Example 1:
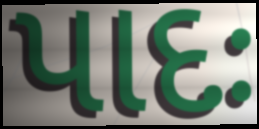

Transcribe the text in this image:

પાદઃ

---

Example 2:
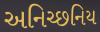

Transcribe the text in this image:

અનિચ્છનિય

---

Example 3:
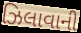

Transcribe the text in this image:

ઝિલાવાની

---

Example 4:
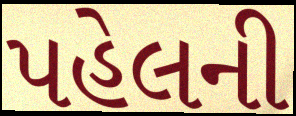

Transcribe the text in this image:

પહેલની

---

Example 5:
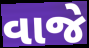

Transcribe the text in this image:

વાજે